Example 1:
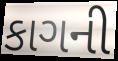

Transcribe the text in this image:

કાગની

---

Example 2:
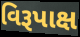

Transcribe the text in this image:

વિરૂપાક્ષ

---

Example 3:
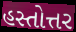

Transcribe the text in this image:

હસ્તોત્તર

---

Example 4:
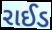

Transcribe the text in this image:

રાઈડ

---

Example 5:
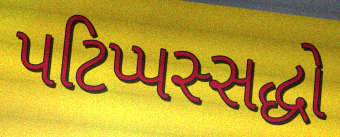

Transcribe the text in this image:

પટિપ્પસ્સદ્ધો